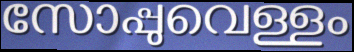
സോപ്പുവെള്ളം